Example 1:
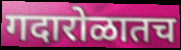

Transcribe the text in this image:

गदारोळातच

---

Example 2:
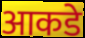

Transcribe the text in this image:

आकडे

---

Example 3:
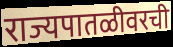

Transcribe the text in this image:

राज्यपातळीवरची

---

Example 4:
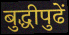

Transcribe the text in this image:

बुद्धीपुढें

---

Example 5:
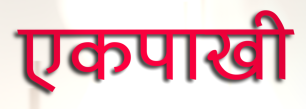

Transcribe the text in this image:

एकपाखी